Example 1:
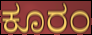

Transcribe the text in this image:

ಕೂರಂ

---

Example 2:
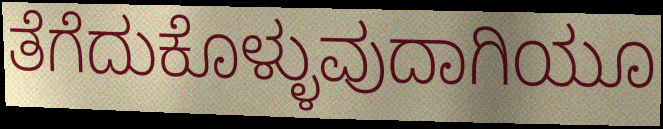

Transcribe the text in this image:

ತೆಗೆದುಕೊಳ್ಳುವುದಾಗಿಯೂ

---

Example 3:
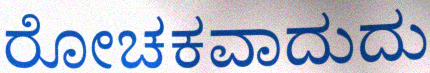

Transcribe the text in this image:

ರೋಚಕವಾದುದು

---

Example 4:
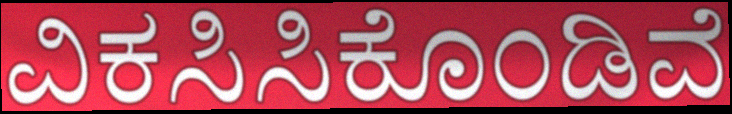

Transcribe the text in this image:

ವಿಕಸಿಸಿಕೊಂಡಿವೆ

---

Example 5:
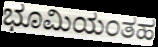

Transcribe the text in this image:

ಭೂಮಿಯಂತಹ